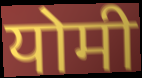
योमी